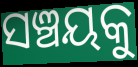
ସଞ୍ଚୟକୁ